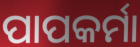
ପାପକର୍ମା